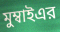
মুম্বাইএর